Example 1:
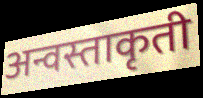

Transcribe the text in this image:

अन्वस्ताकृती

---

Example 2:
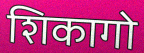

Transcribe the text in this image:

शिकागो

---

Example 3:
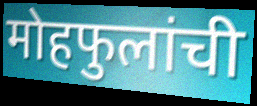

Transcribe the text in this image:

मोहफुलांची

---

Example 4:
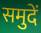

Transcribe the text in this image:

समुदें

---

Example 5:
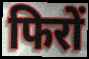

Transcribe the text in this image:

फिरों